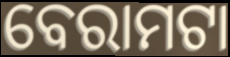
ବେରାମଟା